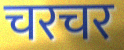
चरचर